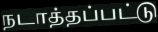
நடாத்தப்பட்டு